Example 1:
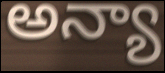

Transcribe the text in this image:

అన్యా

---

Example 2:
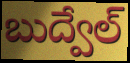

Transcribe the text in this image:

బుద్వేల్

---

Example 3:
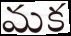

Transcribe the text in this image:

మక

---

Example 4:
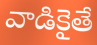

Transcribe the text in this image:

వాడికైతే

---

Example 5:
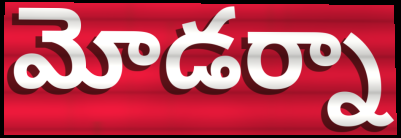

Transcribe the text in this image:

మోడర్నా